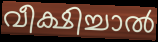
വീക്ഷിച്ചാൽ